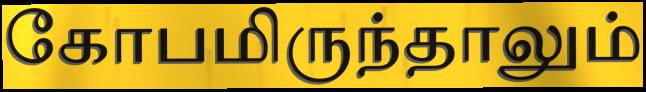
கோபமிருந்தாலும்